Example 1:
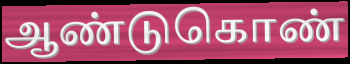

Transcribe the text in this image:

ஆண்டுகொண்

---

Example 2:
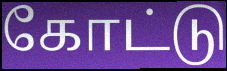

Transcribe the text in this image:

கோட்டு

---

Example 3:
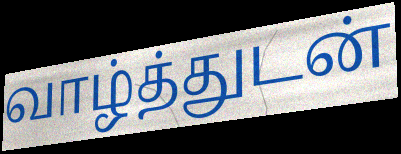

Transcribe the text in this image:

வாழ்த்துடன்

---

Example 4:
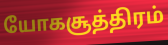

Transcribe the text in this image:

யோகசூத்திரம்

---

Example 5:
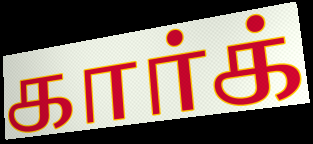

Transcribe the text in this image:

கார்க்